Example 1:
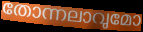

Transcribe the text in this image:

തോന്നലാവുമോ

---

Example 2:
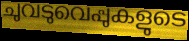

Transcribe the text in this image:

ചുവടുവെപ്പുകളുടെ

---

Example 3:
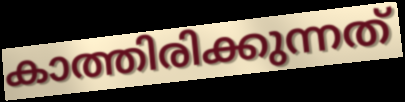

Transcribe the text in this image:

കാത്തിരിക്കുന്നത്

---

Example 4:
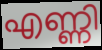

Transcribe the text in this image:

എണ്ണി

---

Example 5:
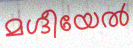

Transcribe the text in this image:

മഗ്ദീയേൽ